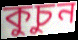
কুচুন